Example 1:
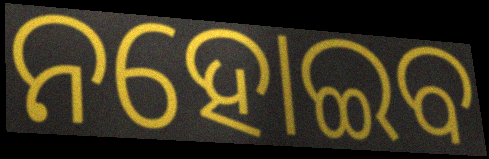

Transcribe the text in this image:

ନହୋଇବ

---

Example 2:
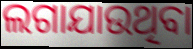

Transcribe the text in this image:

ଲଗାଯାଉଥିବା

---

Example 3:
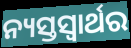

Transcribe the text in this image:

ନ୍ୟସ୍ତସ୍ୱାର୍ଥର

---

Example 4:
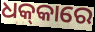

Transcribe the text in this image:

ଧକ୍‌କାରେ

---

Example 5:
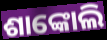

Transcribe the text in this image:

ଶାଙ୍କୋଲି